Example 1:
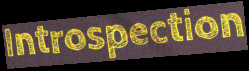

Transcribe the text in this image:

Introspection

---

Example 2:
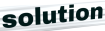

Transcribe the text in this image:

solution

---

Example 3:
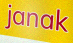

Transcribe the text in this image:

janak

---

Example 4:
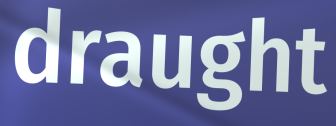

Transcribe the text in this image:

draught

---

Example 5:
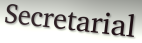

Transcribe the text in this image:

Secretarial